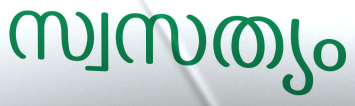
സ്വസത്യം